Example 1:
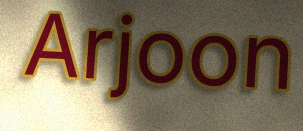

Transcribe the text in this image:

Arjoon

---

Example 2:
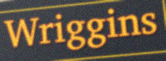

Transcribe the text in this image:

Wriggins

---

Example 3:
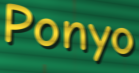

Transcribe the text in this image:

Ponyo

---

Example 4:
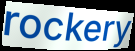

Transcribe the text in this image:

rockery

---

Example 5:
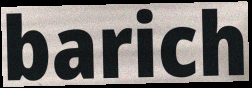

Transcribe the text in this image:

barich